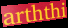
arththi